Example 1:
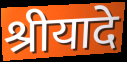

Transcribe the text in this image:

श्रीयादे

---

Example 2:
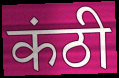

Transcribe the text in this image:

कंठी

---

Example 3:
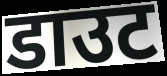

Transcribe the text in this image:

डाउट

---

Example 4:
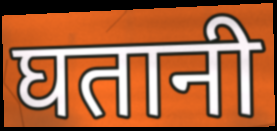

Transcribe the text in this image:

घतानी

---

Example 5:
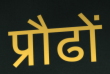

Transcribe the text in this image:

प्रौढों